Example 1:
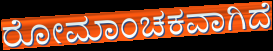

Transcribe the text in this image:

ರೋಮಾಂಚಕವಾಗಿದೆ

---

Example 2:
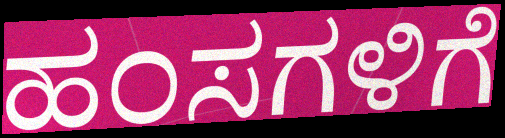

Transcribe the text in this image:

ಹಂಸಗಳಿಗೆ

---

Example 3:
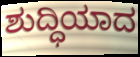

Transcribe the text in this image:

ಶುದ್ಧಿಯಾದ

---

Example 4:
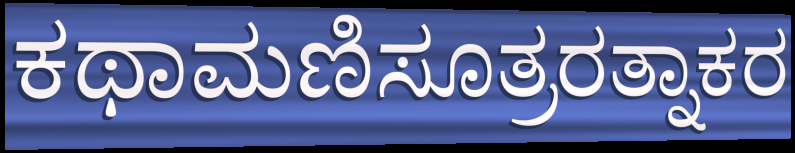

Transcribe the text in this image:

ಕಥಾಮಣಿಸೂತ್ರರತ್ನಾಕರ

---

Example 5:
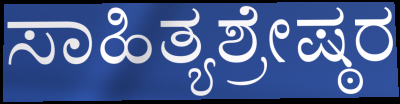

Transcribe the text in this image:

ಸಾಹಿತ್ಯಶ್ರೇಷ್ಠರ